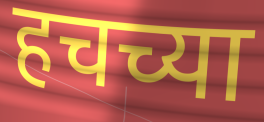
हचच्या